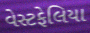
વેસ્ટફેલિયા